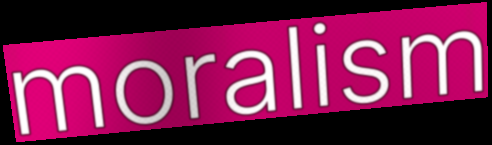
moralism